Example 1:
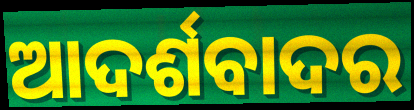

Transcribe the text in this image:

ଆଦର୍ଶବାଦର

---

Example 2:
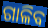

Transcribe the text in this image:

ଗାଳିବ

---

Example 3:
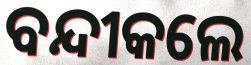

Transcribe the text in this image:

ବନ୍ଦୀକଲେ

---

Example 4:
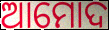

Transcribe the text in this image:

ଆମୋଦ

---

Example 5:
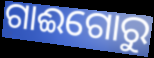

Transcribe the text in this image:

ଗାଈଗୋରୁ